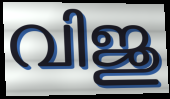
വിജു